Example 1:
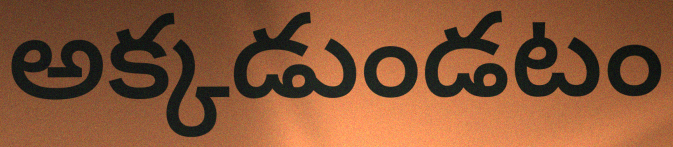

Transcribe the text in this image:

అక్కడుండటం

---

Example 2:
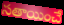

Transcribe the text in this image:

సతాయించే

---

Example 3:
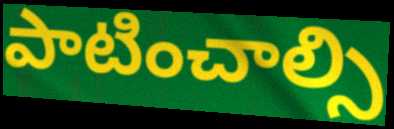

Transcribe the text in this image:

పాటించాల్సి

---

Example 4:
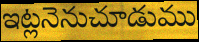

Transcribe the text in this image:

ఇట్లనెనుచూడుము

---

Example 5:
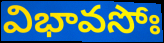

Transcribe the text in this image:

విభావసోః